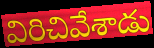
విరిచివేశాడు